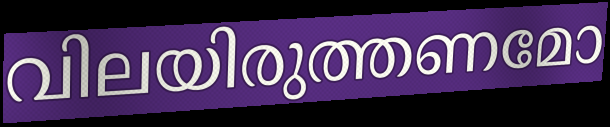
വിലയിരുത്തണമോ